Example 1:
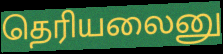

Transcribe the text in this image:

தெரியலைனு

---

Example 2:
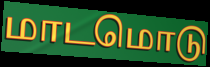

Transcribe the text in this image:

மாடமொடு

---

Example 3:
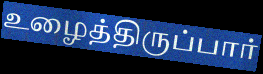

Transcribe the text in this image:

உழைத்திருப்பார்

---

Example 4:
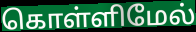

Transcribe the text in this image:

கொள்ளிமேல்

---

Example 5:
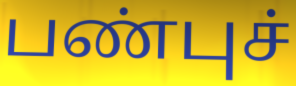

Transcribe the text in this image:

பண்புச்